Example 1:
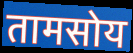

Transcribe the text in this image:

तामसोय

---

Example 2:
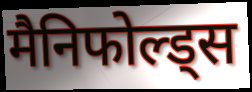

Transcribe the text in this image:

मैनिफोल्ड्स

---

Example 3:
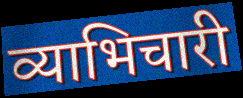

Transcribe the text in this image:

व्याभिचारी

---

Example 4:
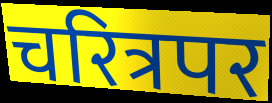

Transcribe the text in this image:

चरित्रपर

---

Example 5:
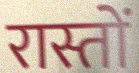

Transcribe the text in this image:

रास्तों